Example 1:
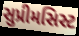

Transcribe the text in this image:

સુપ્રીમસિસ્ટ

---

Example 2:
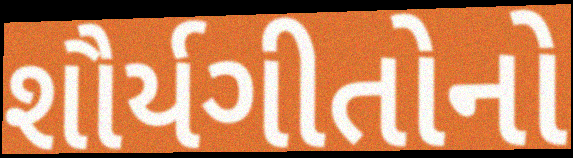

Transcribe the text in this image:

શૌર્યગીતોનો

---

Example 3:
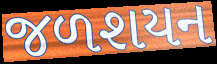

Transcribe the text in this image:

જળશયન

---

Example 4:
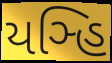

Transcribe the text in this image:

યઞ્હિ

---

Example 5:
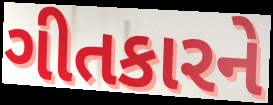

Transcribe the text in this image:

ગીતકારને